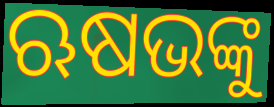
ଋଷଭଙ୍କୁ